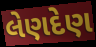
લેણદેણ